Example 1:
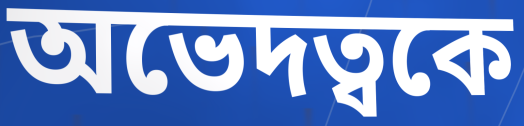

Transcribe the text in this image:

অভেদত্বকে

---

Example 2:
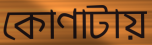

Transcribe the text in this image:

কোণাটায়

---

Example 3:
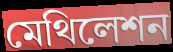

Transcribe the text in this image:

মেথিলেশন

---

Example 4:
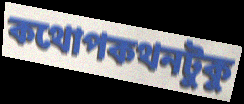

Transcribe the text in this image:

কথোপকথনটুকু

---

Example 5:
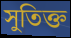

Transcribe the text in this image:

সুতিক্ত